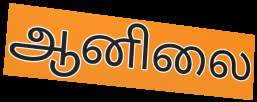
ஆனிலை